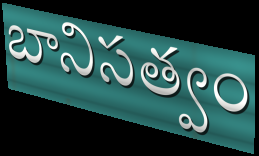
బానిసత్వం